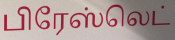
பிரேஸ்லெட்